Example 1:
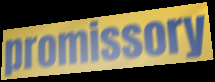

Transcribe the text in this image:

promissory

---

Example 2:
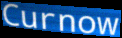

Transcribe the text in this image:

Curnow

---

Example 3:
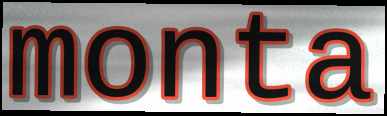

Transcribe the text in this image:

monta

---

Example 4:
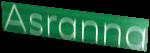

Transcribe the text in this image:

Asranna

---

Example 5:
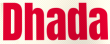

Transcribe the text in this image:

Dhada